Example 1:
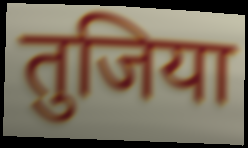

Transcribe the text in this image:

तुजिया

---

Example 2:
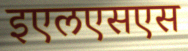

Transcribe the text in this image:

इएलएसएस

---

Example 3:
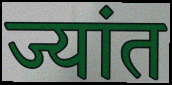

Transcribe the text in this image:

ज्यांत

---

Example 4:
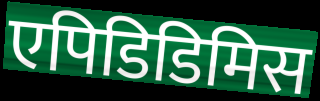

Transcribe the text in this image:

एपिडिडिमिस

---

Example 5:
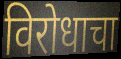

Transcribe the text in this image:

विरोधाचा